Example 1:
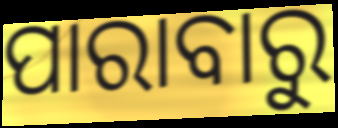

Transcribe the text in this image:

ପାରାବାରୁ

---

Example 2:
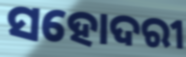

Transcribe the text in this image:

ସହୋଦରୀ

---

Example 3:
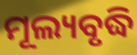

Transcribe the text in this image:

ମୂଲ୍ୟବୃଦ୍ଧି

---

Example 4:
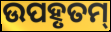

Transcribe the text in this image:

ଉପହୃତମ୍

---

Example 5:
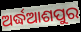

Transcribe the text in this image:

ଅର୍ଦ୍ଧଆଶପୁର